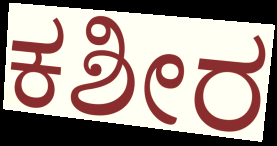
ಕಶೀರ